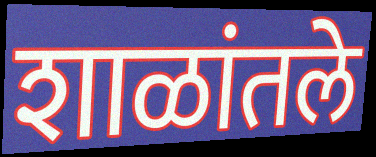
शाळांतले